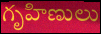
గృహిణులు